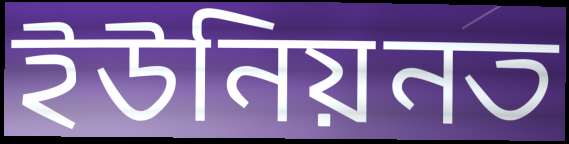
ইউনিয়নত